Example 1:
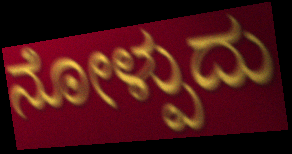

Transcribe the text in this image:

ನೋಳ್ಪುದು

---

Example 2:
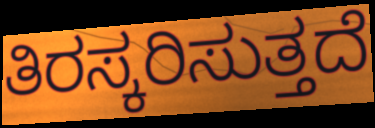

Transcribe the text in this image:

ತಿರಸ್ಕರಿಸುತ್ತದೆ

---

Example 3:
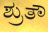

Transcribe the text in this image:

ಶ್ರುತೌ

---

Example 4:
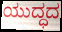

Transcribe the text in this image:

ಯುದ್ಧದ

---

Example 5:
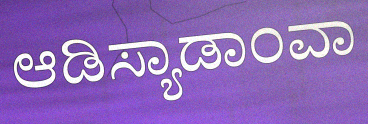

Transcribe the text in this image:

ಆಡಿಸ್ಯಾಡಾಂವಾ